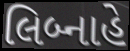
લિબ્નાહે